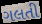
ગલતી